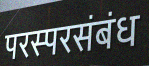
परस्परसंबंध